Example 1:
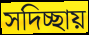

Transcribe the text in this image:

সদিচ্ছায়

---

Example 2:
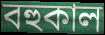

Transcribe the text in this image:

বহুকাল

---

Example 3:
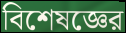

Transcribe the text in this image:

বিশেষজ্ঞের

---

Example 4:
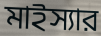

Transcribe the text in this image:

মাইস্যার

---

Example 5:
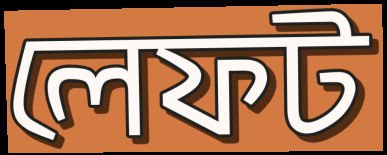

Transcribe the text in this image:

লেফট